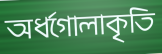
অর্ধগোলাকৃতি